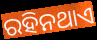
ରହିନଥାଏ